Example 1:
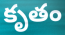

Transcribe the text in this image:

కృతం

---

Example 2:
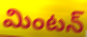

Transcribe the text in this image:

మింటన్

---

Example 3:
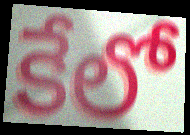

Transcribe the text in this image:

కేలో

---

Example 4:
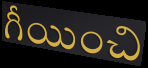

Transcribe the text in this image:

గీయించి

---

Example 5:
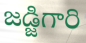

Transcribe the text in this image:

జడ్జిగారి